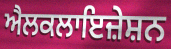
ਐਲਕਲਾਇਜ਼ੇਸ਼ਨ